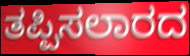
ತಪ್ಪಿಸಲಾರದ